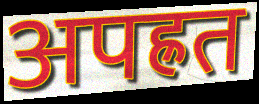
अपह्रत